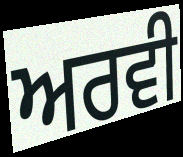
ਅਰਵੀ